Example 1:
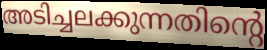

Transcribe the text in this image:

അടിച്ചലക്കുന്നതിന്റെ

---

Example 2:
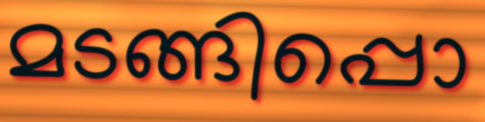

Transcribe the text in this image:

മടങ്ങിപ്പൊ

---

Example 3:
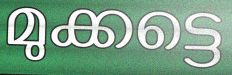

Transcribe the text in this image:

മുക്കട്ടെ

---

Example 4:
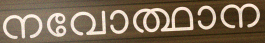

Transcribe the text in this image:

നവോത്ഥാന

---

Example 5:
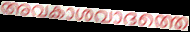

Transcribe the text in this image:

അവകാശവാദത്തെ